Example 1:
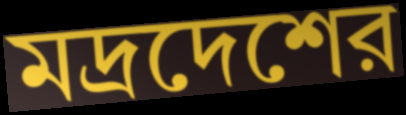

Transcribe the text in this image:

মদ্রদেশের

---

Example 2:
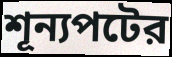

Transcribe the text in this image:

শূন্যপটের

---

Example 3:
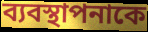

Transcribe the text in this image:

ব্যবস্থাপনাকে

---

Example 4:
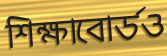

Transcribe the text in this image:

শিক্ষাবোর্ডও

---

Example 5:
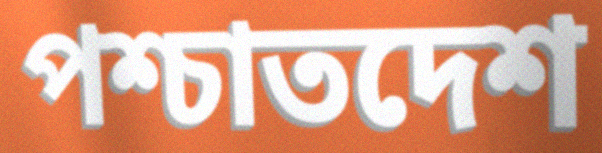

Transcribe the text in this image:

পশ্চাতদেশ